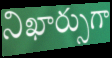
నిఖార్సుగా